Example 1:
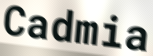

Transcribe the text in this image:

Cadmia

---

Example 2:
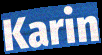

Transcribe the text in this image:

Karin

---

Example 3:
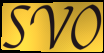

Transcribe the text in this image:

SVO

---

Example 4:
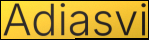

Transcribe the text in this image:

Adiasvi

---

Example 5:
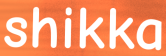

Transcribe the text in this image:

shikka